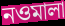
নওমালা